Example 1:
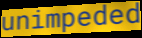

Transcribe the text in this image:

unimpeded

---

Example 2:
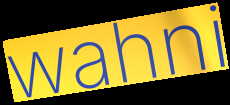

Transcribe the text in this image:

wahni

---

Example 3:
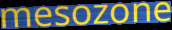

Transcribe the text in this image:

mesozone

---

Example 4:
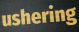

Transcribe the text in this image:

ushering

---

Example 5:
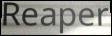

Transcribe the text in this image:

Reaper